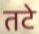
तटे